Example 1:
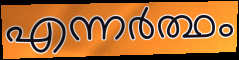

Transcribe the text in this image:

എന്നർത്ഥം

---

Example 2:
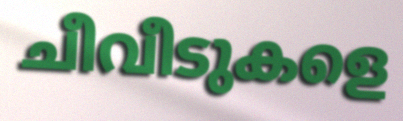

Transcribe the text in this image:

ചീവീടുകളെ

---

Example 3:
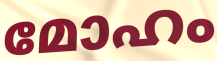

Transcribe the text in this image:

മോഹം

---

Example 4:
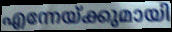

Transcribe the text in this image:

എന്നേയ്ക്കുമായി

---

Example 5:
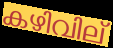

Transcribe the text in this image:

കഴിവില്